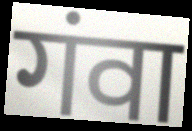
गंवा